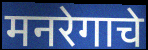
मनरेगाचे